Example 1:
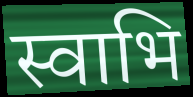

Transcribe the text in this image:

स्वाभि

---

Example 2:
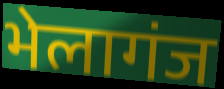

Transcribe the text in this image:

भेलागंज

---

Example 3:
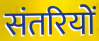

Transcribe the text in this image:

संतरियों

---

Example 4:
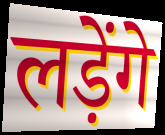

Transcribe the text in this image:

लड़ेंगे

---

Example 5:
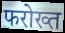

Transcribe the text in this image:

फरोख्त